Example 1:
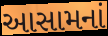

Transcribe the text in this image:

આસામનાં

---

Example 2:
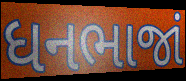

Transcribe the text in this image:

ધનભાજાં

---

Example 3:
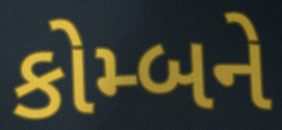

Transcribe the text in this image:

કોમ્બને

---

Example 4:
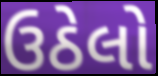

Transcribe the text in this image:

ઉઠેલો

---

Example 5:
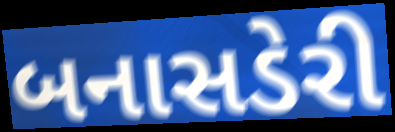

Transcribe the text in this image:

બનાસડેરી